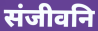
संजीवनि